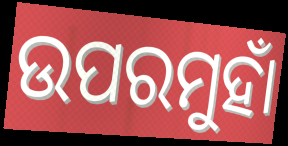
ଉପରମୁହାଁ